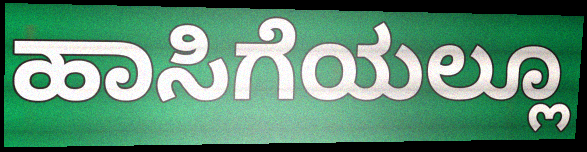
ಹಾಸಿಗೆಯಲ್ಲೂ